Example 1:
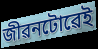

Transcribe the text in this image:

জীৱনটোৱেই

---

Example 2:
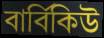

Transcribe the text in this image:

বাৰ্বিকিউ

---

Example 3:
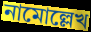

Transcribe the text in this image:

নামোল্লেখ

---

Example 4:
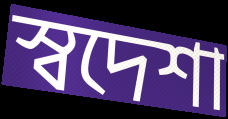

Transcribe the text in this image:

স্বদেশা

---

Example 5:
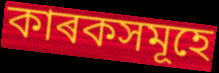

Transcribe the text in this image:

কাৰকসমূহে